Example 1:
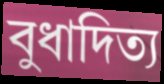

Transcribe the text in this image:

বুধাদিত্য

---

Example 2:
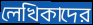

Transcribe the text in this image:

লেখিকাদের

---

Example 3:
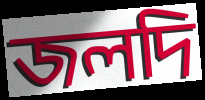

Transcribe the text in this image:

জলদি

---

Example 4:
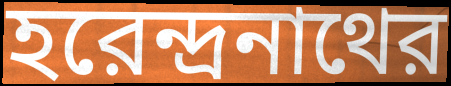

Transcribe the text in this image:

হরেন্দ্রনাথের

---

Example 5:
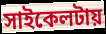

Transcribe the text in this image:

সাইকেলটায়